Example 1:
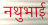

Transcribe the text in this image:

नथुभाई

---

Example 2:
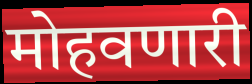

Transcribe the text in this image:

मोहवणारी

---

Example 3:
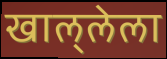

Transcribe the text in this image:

खाल्लेला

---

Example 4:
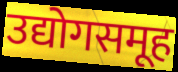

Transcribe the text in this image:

उद्योगसमूह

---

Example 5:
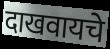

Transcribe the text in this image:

दाखवायचे